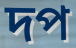
দপ